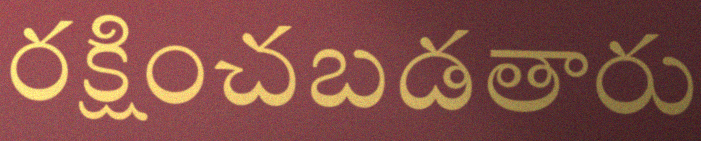
రక్షించబడతారు